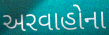
અરવાહોના